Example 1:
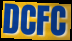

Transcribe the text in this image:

DCFC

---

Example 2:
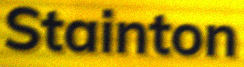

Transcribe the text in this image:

Stainton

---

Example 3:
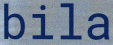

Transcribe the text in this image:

bila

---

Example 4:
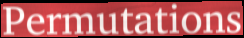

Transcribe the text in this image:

Permutations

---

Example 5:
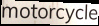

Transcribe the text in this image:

motorcycle